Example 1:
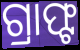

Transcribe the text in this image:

ଗ୍ରାଫ୍ଟ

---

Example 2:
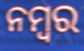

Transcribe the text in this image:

ନମ୍ବର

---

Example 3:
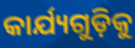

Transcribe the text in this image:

କାର୍ଯ୍ୟଗୁଡ଼ିକୁ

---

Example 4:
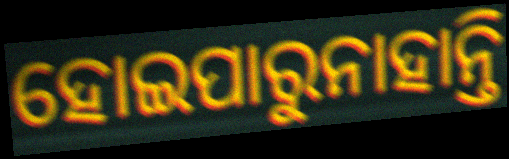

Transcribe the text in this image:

ହୋଇପାରୁନାହାନ୍ତି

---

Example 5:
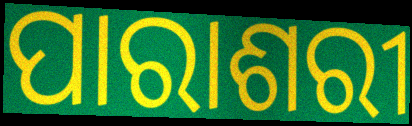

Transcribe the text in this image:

ପାରାଶରୀ